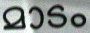
മാടം